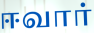
ஈவார்